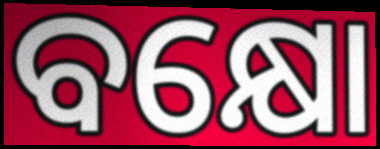
ବକ୍ଷୋ